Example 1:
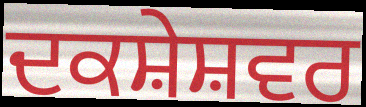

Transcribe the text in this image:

ਦਕਸ਼ੇਸ਼ਵਰ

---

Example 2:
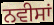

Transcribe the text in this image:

ਨਵੀਸਾਂ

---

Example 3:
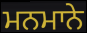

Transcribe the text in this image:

ਮਨਮਾਨੇ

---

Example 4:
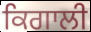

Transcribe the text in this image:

ਕਿਗਾਲੀ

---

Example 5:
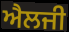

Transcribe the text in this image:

ਐਲਜੀ